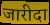
जारीदा